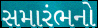
સમારંભનો